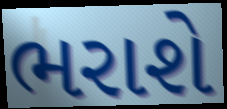
ભરાશે